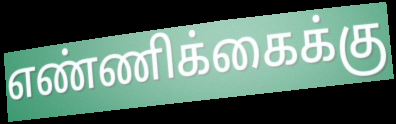
எண்ணிக்கைக்கு